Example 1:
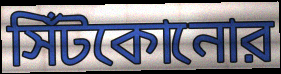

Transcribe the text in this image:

সিঁটকোনোর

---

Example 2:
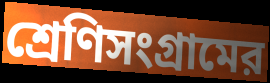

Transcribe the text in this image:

শ্রেণিসংগ্রামের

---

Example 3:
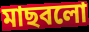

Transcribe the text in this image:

মাছবলো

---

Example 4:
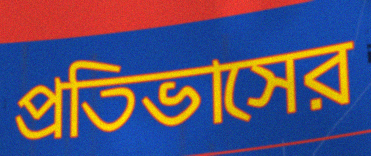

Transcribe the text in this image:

প্রতিভাসের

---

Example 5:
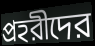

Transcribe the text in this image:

প্রহরীদের